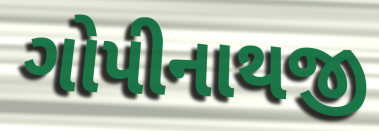
ગોપીનાથજી